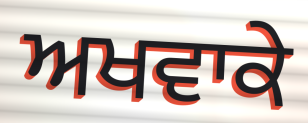
ਅਖਵਾਕੇ